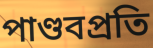
পাণ্ডবপ্রতি